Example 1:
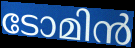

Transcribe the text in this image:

ടോമിൻ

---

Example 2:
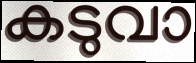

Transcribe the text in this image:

കടുവാ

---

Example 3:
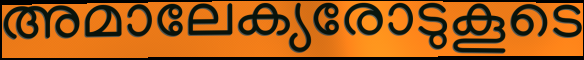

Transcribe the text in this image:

അമാലേക്യരോടുകൂടെ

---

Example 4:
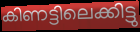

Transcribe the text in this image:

കിണട്ടിലെക്കിട്ടു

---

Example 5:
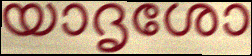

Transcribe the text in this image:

യാദൃശോ